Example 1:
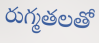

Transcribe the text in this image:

రుగ్మతలతో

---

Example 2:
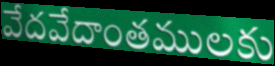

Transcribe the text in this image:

వేదవేదాంతములకు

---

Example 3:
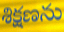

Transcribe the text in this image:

శిక్షణను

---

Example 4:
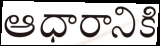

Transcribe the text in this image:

ఆధారానికి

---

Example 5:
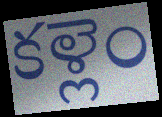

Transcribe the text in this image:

కళ్లెం